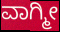
ವಾಗ್ಮೀ